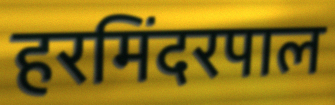
हरमिंदरपाल